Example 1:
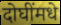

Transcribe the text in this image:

दोघींमधे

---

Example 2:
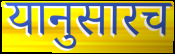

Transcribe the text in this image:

यानुसारच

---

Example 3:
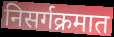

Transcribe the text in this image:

निसर्गक्रमात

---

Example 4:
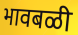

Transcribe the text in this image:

भावबळी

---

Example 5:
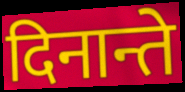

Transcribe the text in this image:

दिनान्ते